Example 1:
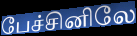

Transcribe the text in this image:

பேச்சினிலே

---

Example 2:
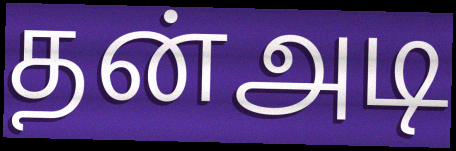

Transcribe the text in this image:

தன்அடி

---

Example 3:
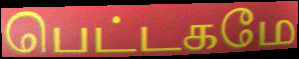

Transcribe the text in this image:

பெட்டகமே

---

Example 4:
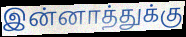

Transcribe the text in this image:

இன்னாத்துக்கு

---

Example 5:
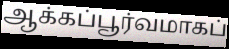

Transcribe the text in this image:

ஆக்கப்பூர்வமாகப்